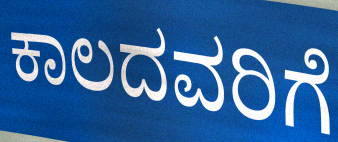
ಕಾಲದವರಿಗೆ